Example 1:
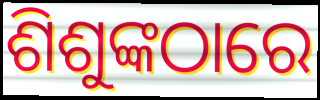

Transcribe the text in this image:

ଶିଶୁଙ୍କଠାରେ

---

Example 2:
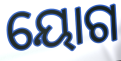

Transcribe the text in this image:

ୟୋଗ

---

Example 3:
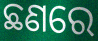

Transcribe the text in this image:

ଛଣରେ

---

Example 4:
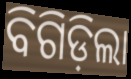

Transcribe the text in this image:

ବିଗିଡ଼ିଲା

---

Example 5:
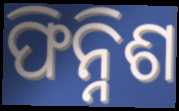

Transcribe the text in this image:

ଫିନ୍ନିଶ